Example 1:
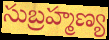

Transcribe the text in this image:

సుబ్రహ్మణ్య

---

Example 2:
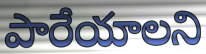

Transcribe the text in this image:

పారేయాలని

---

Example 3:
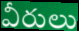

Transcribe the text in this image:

వీరులు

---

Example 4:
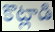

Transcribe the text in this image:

కొట్లాడి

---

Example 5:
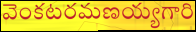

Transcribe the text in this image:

వెంకటరమణయ్యగారి